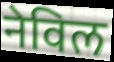
नेविल